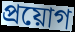
প্রয়োগ